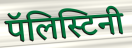
पॅलिस्टिनी